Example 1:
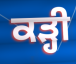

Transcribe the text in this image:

ਕੜ੍ਹੀ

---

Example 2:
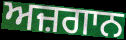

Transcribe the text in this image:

ਅਜ਼ਗਾਨ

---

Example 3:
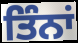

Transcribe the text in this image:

ਤਿੰਨਾਂ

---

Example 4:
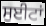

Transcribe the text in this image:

ਸੁਈਟਾਂ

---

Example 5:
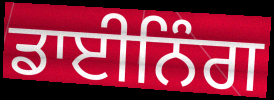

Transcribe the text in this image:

ਡਾਈਨਿੰਗ